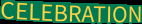
CELEBRATION